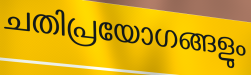
ചതിപ്രയോഗങ്ങളും